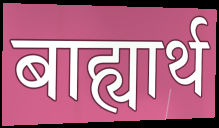
बाह्यार्थ